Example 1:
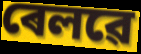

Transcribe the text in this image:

ৰেলৱে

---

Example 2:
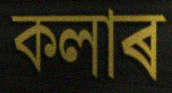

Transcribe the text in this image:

কলাৰ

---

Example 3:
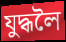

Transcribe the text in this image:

যুদ্ধলৈ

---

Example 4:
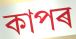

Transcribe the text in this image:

কাপৰ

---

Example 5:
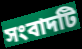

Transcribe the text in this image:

সংবাদটি